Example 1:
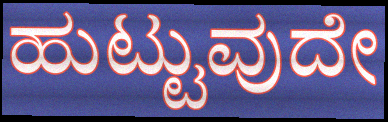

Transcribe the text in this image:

ಹುಟ್ಟುವುದೇ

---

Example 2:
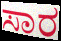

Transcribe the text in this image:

ಸಾರ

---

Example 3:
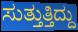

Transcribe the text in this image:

ಸುತ್ತುತ್ತಿದ್ದು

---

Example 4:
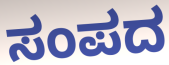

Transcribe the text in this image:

ಸಂಪದ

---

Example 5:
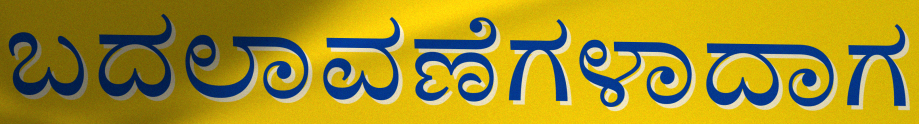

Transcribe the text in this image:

ಬದಲಾವಣೆಗಳಾದಾಗ